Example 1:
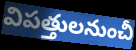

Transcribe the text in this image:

విపత్తులనుంచీ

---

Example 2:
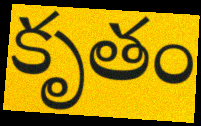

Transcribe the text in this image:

కృతం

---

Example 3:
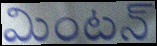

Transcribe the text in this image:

మింటన్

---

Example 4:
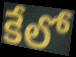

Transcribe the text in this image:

కేలో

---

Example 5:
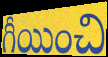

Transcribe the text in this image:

గీయించి